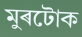
মুৰটোক